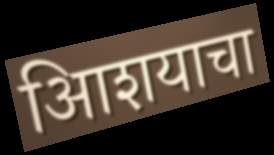
आिशयाचा